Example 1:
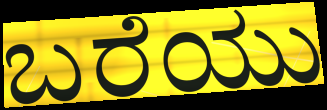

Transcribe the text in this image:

ಬರೆಯು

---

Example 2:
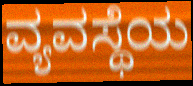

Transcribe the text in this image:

ವ್ಯವಸ್ಥೆಯ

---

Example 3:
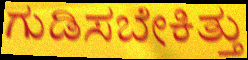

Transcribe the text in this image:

ಗುಡಿಸಬೇಕಿತ್ತು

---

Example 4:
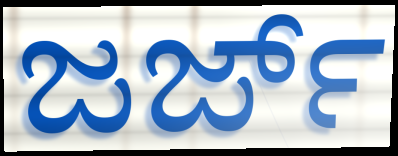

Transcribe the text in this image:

ಜರ್ಜ್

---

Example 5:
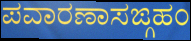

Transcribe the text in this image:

ಪವಾರಣಾಸಙ್ಗಹಂ